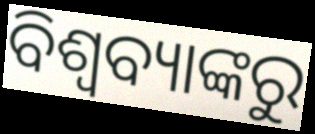
ବିଶ୍ୱବ୍ୟାଙ୍କରୁ